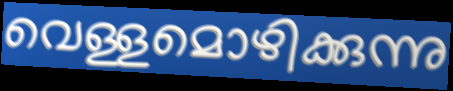
വെള്ളമൊഴിക്കുന്നു